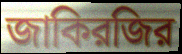
জাকিরজির